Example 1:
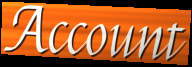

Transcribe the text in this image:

Account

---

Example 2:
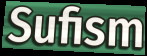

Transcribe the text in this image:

Sufism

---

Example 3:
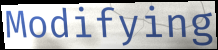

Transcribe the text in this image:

Modifying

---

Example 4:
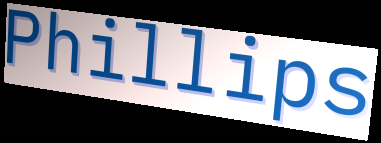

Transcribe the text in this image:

Phillips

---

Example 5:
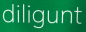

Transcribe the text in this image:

diligunt